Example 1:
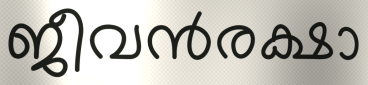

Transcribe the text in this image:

ജീവൻരക്ഷാ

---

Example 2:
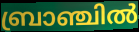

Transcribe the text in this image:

ബ്രാഞ്ചിൽ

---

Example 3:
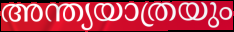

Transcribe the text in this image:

അന്ത്യയാത്രയും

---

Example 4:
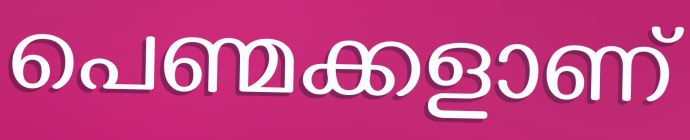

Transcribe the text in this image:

പെണ്മക്കളാണ്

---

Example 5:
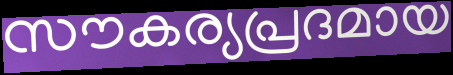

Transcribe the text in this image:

സൗകര്യപ്രദമായ